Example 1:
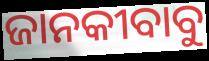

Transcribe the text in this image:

ଜାନକୀବାବୁ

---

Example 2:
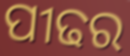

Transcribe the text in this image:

ପୀଢର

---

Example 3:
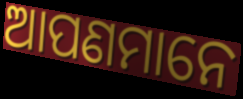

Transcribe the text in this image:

ଆପଣମାନେ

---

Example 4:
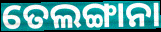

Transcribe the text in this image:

ତେଲଙ୍ଗାନା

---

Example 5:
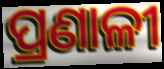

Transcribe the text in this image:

ପ୍ରଣାଳୀ